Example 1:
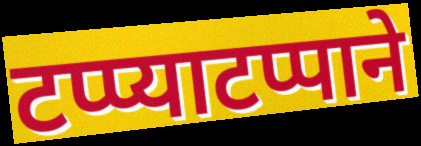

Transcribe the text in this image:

टप्प्याटप्पाने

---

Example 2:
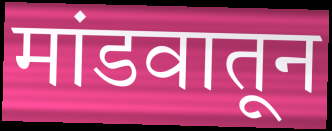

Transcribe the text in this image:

मांडवातून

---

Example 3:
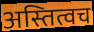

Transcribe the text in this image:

अस्तित्वच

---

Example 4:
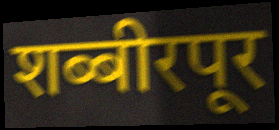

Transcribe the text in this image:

शब्बीरपूर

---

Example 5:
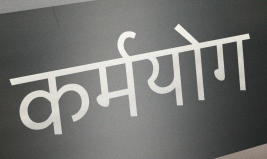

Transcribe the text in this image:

कर्मयोग